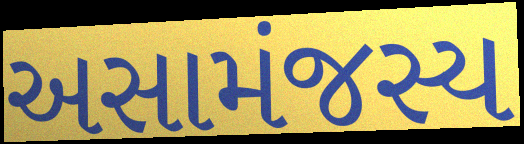
અસામંજસ્ય